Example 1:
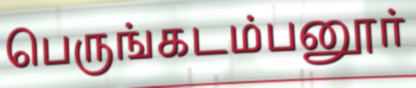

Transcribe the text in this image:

பெருங்கடம்பனூர்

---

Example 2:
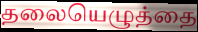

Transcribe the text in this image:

தலையெழுத்தை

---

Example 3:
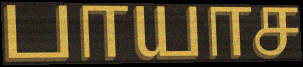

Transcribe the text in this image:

பாயாச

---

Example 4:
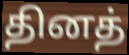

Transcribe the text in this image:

தினத்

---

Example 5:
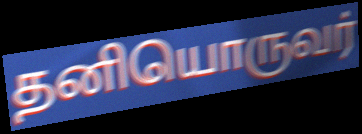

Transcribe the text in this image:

தனியொருவர்